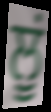
ਲੂਂ